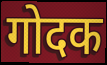
गोदक